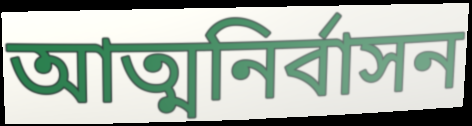
আত্মনির্বাসন